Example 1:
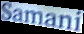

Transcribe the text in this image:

Samani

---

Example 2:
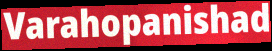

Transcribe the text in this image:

Varahopanishad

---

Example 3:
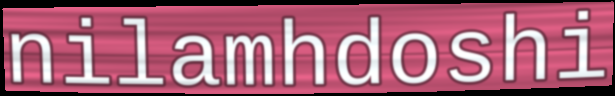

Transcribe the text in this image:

nilamhdoshi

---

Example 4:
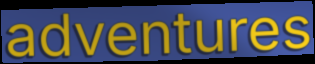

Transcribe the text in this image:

adventures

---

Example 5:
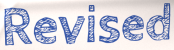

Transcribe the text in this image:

Revised